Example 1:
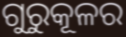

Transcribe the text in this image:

ଗୁରୁକୂଳର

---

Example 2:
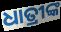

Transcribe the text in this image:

ଧାତ୍ରୀଙ୍କ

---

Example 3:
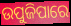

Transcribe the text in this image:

ଉପୁଜିପାରେ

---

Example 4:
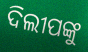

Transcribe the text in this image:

ଦିଲୀପଙ୍କୁ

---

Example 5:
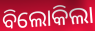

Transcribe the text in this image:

ବିଲୋକିଲା